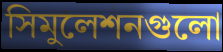
সিমুলেশনগুলো